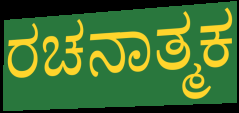
ರಚನಾತ್ಮಕ